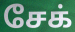
சேக்